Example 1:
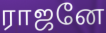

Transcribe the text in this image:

ராஜனே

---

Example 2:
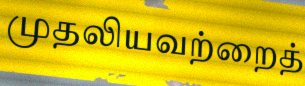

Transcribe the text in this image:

முதலியவற்றைத்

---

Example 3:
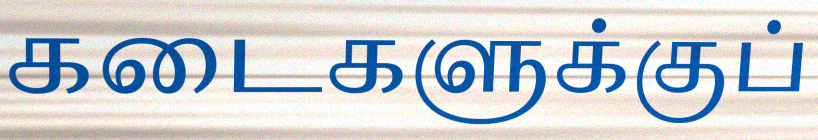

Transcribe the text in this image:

கடைகளுக்குப்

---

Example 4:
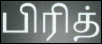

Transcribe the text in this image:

பிரித்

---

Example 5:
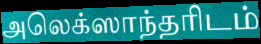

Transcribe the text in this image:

அலெக்ஸாந்தரிடம்